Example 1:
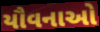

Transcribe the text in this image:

યૌવનાઓ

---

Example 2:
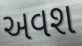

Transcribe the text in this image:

અવશ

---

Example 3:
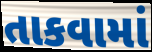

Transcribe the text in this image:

તાકવામાં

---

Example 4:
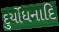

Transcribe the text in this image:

દુર્યોધનાદિ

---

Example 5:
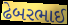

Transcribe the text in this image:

ઢેબરભાઈ